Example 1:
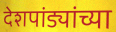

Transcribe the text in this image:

देशपांड्यांच्या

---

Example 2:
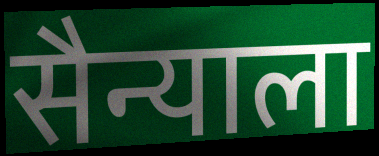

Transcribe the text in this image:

सैन्याला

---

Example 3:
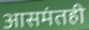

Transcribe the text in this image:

आसमंतही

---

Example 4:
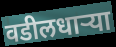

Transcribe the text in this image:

वडीलधाऱ्या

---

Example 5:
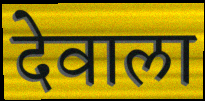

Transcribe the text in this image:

देवाला